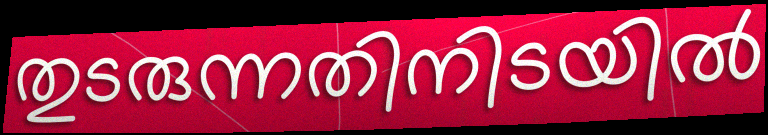
തുടരുന്നതിനിടയിൽ